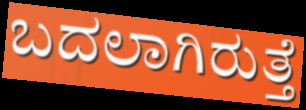
ಬದಲಾಗಿರುತ್ತೆ